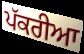
ਪੱਕਰੀਆ